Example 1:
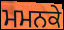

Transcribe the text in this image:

ਮਮਨਕੇ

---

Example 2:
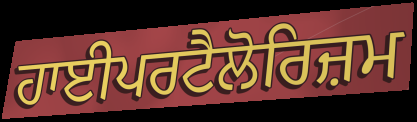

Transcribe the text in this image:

ਹਾਈਪਰਟੈਲੋਰਿਜ਼ਮ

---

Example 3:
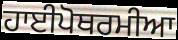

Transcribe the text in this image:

ਹਾਈਪੋਥਰਮੀਆ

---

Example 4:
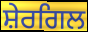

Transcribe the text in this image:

ਸ਼ੇਰਗਿਲ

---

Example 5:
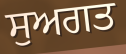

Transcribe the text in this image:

ਸੁਅਗਤ